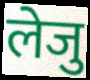
लेजु